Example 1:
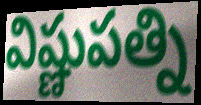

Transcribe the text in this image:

విష్ణుపత్ని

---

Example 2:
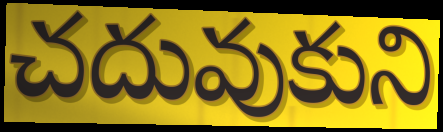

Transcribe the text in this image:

చదువుకుని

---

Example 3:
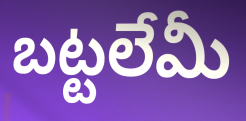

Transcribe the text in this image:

బట్టలేమీ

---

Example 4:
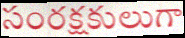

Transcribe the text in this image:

సంరక్షకులుగా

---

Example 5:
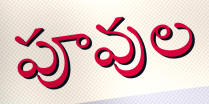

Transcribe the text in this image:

పూవుల